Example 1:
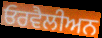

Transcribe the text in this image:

ਓਰਵੈਲੀਅਨ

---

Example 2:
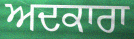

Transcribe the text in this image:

ਅਦਕਾਰਾ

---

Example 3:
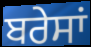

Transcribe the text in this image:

ਬਰੇਸਾਂ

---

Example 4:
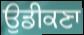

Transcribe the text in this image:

ਉਡੀਕਣਾ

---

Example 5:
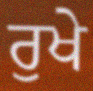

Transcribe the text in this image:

ਰੁਖੇ